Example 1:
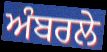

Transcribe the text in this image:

ਅੰਬਰਲੇ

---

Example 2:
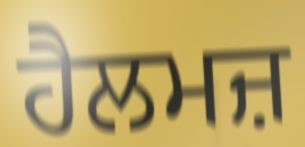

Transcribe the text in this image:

ਹੈਲਮਜ਼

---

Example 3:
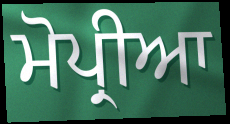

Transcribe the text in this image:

ਮੋਪ੍ਰੀਆ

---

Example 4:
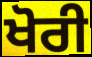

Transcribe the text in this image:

ਖੋਰੀ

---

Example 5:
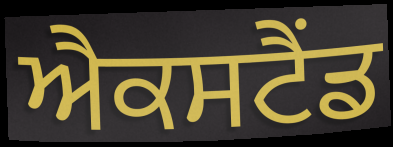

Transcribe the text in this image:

ਐਕਸਟੈਂਡ